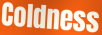
Coldness